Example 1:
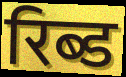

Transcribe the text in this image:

रिब्ड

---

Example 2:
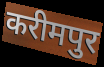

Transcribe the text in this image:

करीमपुर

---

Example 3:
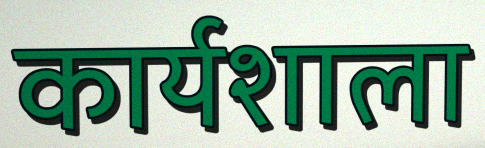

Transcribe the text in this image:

कार्यशाला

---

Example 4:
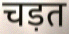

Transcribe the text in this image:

चड़त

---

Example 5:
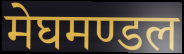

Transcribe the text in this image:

मेघमण्डल